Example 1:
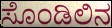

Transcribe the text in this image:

ಸೊಂಡಿಲಿನ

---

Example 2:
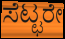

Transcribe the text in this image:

ಸೆಟ್ಟರೇ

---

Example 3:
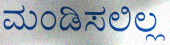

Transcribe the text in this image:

ಮಂಡಿಸಲಿಲ್ಲ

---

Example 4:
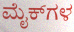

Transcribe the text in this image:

ಮೈಕ್‌ಗಳ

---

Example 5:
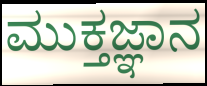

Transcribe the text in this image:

ಮುಕ್ತಜ್ಞಾನ